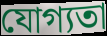
যোগ্যতা